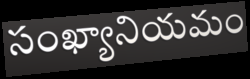
సంఖ్యానియమం